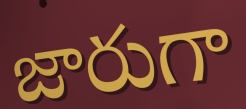
జారుగా